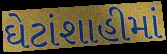
ઘેટાંશાહીમાં